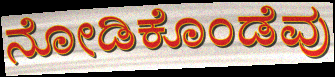
ನೋಡಿಕೊಂಡೆವು